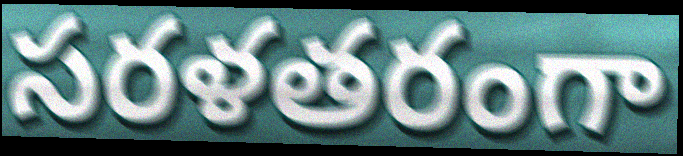
సరళతరంగా